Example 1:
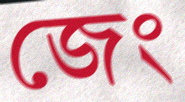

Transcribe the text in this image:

জেং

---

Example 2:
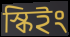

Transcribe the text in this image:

স্কিইং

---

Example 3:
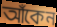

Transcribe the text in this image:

আঁকেন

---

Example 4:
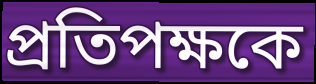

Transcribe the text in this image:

প্রতিপক্ষকে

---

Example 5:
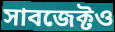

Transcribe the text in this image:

সাবজেক্টও